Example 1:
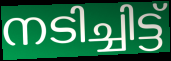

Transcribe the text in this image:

നടിച്ചിട്ട്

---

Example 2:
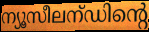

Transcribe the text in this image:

ന്യൂസീലന്ഡിന്റെ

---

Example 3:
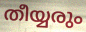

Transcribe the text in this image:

തീയ്യരും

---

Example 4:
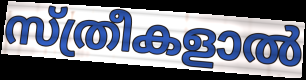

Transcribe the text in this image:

സ്ത്രീകളാൽ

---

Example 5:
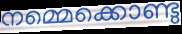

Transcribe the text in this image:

നമ്മെക്കൊണ്ടു